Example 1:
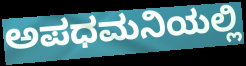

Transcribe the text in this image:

ಅಪಧಮನಿಯಲ್ಲಿ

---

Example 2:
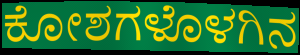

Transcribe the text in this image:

ಕೋಶಗಳೊಳಗಿನ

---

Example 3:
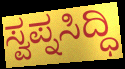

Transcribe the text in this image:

ಸ್ವಪ್ನಸಿದ್ಧಿ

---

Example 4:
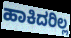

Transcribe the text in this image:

ಹಾಕಿದರಿಲ್ಲ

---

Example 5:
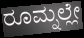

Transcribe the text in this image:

ರೂಮ್ನಲ್ಲೇ